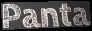
Panta